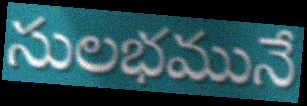
సులభమునే